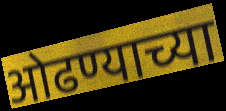
ओढण्याच्या